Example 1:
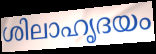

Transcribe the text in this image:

ശിലാഹൃദയം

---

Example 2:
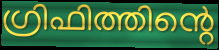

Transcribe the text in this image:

ഗ്രിഫിത്തിന്റെ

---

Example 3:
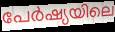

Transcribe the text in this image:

പേർഷ്യയിലെ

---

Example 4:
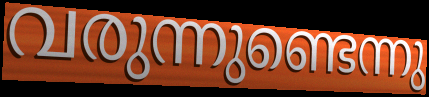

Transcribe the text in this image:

വരുന്നുണ്ടെന്നു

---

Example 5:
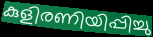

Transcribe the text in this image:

കുളിരണിയിപ്പിച്ചു